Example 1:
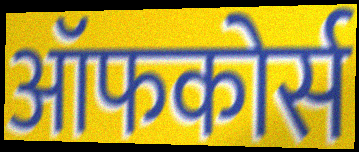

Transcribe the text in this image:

ऑफकोर्स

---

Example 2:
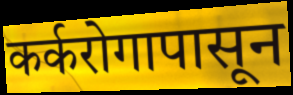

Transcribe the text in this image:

कर्करोगापासून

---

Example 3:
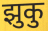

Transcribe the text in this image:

झुकु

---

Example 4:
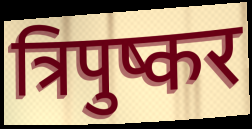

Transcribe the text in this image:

त्रिपुष्कर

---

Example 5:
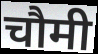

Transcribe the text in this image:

चौमी